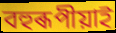
বহুৰূপীয়াই